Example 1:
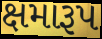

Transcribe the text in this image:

ક્ષમારૂપ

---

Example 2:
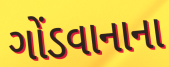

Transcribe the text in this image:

ગોંડવાનાના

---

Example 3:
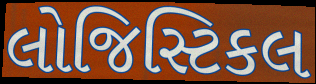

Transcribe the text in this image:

લોજિસ્ટિકલ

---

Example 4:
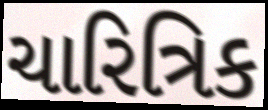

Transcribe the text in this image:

ચારિત્રિક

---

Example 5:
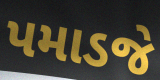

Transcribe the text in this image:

પમાડજે